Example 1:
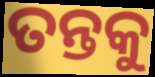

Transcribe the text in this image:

ତନ୍ତକୁ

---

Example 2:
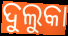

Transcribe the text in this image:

ଦୁଲୁକା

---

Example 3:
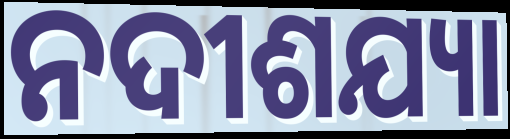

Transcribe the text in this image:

ନଦୀଶଯ୍ୟା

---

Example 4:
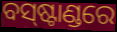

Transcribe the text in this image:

ବସ୍‌ଷ୍ଟାଣ୍ଡରେ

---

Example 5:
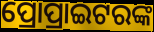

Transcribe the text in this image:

ପ୍ରୋପ୍ରାଇଟରଙ୍କ